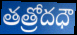
తత్రోదధౌ